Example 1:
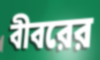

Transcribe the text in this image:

বীবরের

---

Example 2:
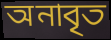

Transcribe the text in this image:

অনাবৃত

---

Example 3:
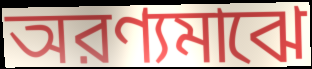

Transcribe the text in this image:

অরণ্যমাঝে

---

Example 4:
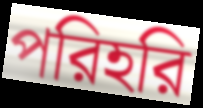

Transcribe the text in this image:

পরিহরি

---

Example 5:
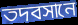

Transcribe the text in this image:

তদবসানে